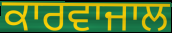
ਕਾਰਵਾਜਾਲ